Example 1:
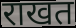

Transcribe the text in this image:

राखत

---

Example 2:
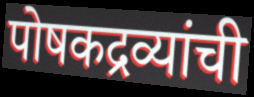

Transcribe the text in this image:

पोषकद्रव्यांची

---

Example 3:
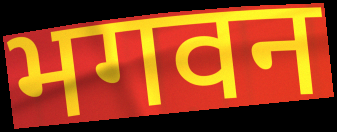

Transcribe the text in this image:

भगवन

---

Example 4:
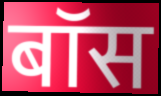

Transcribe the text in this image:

बॉस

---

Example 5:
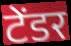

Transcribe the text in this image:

टेंडर